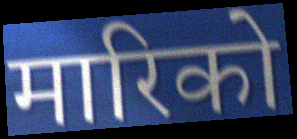
मारिको